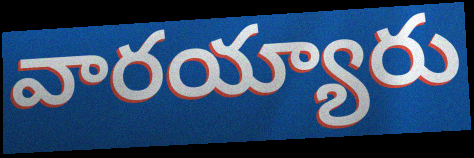
వారయ్యారు